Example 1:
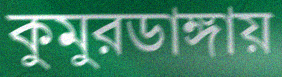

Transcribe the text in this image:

কুমুরডাঙ্গায়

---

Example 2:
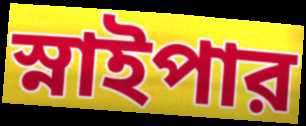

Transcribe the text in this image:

স্নাইপার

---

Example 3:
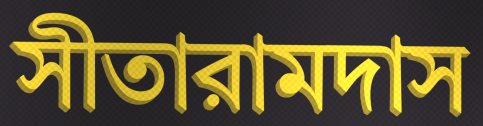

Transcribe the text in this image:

সীতারামদাস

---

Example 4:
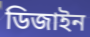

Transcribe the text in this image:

ডিজাইন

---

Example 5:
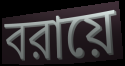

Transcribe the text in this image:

বরায়ে